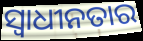
ସ୍ବାଧୀନତାର